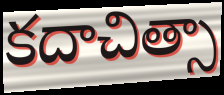
కదాచిత్సా